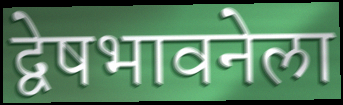
द्वेषभावनेला